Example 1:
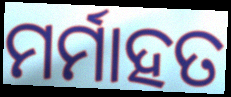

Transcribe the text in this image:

ମର୍ମାହତ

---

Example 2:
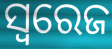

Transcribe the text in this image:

ସ୍ବରେଜ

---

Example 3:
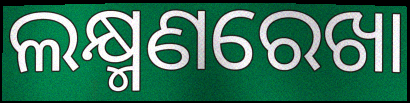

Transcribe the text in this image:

ଲକ୍ଷ୍ମଣରେଖା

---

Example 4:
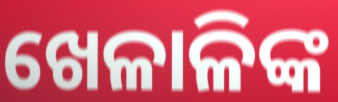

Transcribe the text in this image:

ଖେଳାଳିଙ୍କ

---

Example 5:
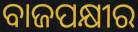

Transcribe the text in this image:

ବାଜପକ୍ଷୀର